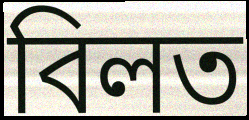
বিলত